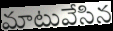
మాటువేసిన